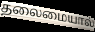
தலைமையால்